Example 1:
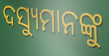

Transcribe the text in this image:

ଦସ୍ୟୁମାନଙ୍କୁ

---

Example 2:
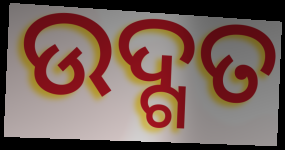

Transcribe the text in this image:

ଉଦ୍ଗତ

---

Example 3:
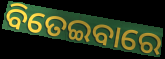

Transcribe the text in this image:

ବିତେଇବାରେ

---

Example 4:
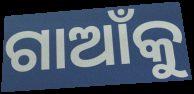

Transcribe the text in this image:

ଗାଆଁକୁ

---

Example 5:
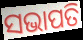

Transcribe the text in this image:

ସଭାପତି